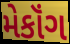
મેકૉંગ